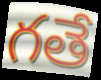
గతే